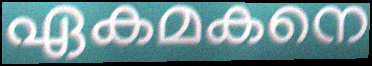
ഏകമകനെ